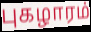
புகழாரம்